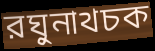
রঘুনাথচক